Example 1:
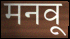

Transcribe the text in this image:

मनवू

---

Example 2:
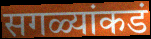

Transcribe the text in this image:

सगळ्यांकडं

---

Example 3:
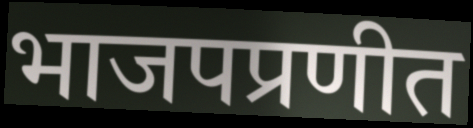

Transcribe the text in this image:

भाजपप्रणीत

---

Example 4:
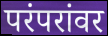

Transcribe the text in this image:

परंपरांवर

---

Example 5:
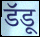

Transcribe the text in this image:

डॅडू